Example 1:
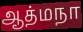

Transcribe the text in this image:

ஆத்மநா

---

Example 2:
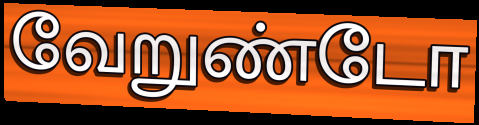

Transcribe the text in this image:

வேறுண்டோ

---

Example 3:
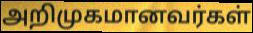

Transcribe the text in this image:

அறிமுகமானவர்கள்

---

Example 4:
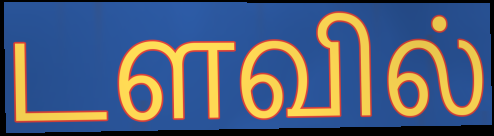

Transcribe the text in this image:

டளவில்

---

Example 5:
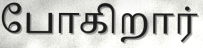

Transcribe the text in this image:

போகிறார்